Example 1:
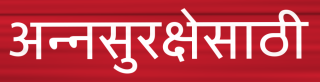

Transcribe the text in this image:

अन्नसुरक्षेसाठी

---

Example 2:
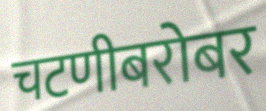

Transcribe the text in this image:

चटणीबरोबर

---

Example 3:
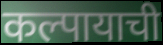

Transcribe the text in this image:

कल्पायाची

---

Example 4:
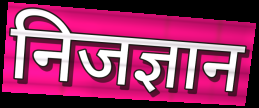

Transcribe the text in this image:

निजज्ञान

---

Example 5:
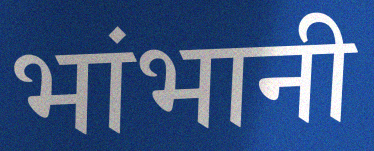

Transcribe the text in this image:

भांभानी